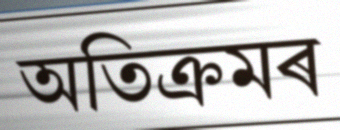
অতিক্ৰমৰ